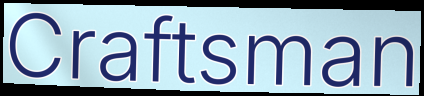
Craftsman